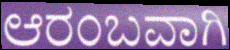
ಆರಂಬವಾಗಿ